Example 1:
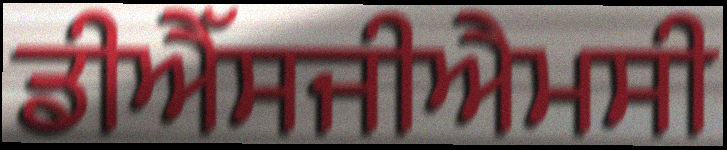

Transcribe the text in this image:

ਡੀਐੱਸਜੀਐਮਸੀ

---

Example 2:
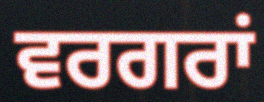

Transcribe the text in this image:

ਵਰਗਰਾਂ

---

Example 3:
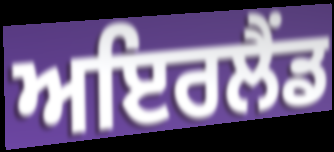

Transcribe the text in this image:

ਅਇਰਲੈਂਡ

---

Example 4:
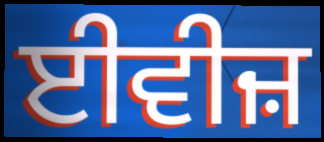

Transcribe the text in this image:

ਈਵੀਜ਼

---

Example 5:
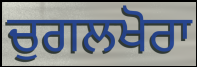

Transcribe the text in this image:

ਚੁਗਲਖੋਰਾ